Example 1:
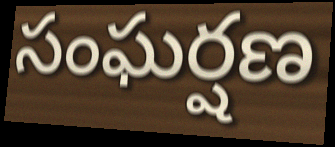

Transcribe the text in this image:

సంఘర్షణ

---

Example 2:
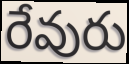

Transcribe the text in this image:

రేవురు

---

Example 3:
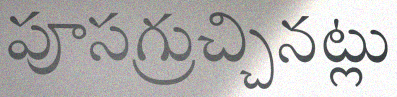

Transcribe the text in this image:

పూసగ్రుచ్చినట్లు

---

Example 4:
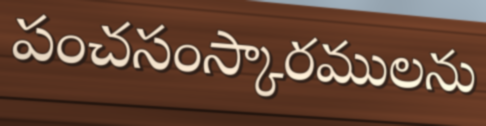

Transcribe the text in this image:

పంచసంస్కారములను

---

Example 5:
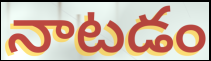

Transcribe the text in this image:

నాటడం